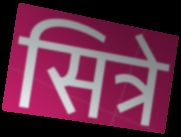
सित्रे